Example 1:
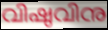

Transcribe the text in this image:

വിഷുവിനു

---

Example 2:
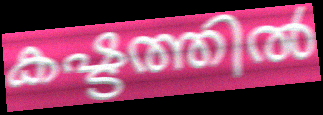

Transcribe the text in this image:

കഷ്ടത്തിൽ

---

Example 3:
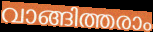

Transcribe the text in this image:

വാങ്ങിത്തരാം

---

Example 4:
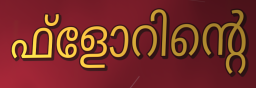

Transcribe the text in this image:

ഫ്ളോറിന്റെ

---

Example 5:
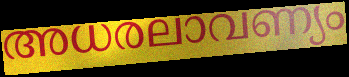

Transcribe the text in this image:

അധരലാവണ്യം